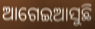
ଆଗେଇଆସୁଛି